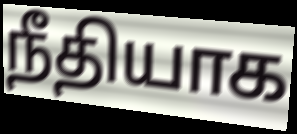
நீதியாக